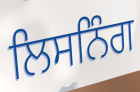
ਲਿਸਨਿੰਗ